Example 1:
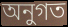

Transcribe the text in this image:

অনুগত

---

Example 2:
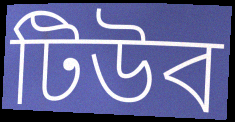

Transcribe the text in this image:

টিউব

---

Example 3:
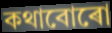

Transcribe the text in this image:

কথাবোৰো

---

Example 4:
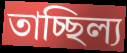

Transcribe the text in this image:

তাচ্ছিল্য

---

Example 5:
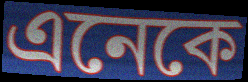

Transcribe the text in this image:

এনেকে